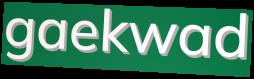
gaekwad